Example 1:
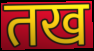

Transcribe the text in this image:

तख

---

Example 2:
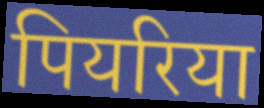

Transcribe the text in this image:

पियरिया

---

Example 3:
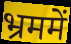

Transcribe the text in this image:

भ्रममें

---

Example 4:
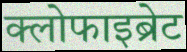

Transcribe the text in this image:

क्लोफाइब्रेट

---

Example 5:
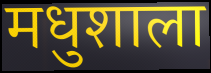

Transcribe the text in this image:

मधुशाला